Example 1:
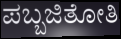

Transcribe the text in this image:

ಪಬ್ಬಜಿತೋತಿ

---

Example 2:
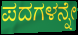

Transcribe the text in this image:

ಪದಗಳನ್ನೇ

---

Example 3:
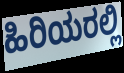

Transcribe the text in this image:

ಹಿರಿಯರಲ್ಲಿ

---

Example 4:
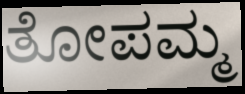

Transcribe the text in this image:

ತೋಪಮ್ಮ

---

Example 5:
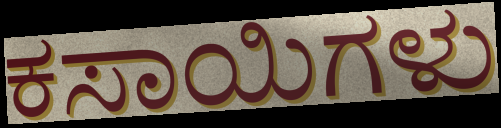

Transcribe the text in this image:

ಕಸಾಯಿಗಳು